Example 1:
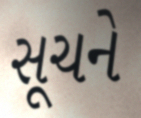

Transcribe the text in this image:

સૂચને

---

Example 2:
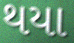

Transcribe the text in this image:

થયા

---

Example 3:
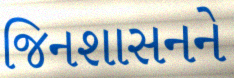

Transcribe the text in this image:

જિનશાસનને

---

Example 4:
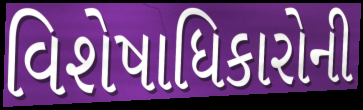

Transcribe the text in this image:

વિશેષાધિકારોની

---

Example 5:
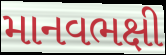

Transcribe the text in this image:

માનવભક્ષી